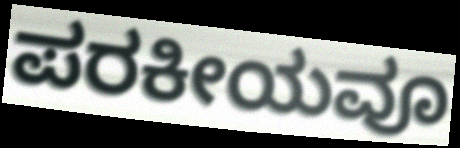
ಪರಕೀಯವೂ